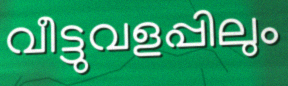
വീട്ടുവളപ്പിലും